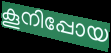
കൂനിപ്പോയ